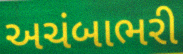
અચંબાભરી